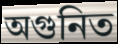
অগুনিত